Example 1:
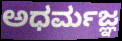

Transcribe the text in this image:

ಅಧರ್ಮಜ್ಞ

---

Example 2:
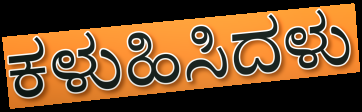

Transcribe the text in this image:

ಕಳುಹಿಸಿದಳು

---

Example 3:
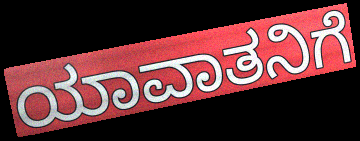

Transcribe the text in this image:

ಯಾವಾತನಿಗೆ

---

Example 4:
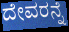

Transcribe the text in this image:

ದೇವರನ್ನೆ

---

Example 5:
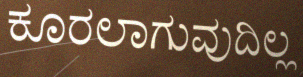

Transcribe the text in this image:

ಕೂರಲಾಗುವುದಿಲ್ಲ